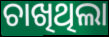
ଚାଖିଥିଲା